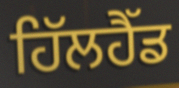
ਹਿੱਲਹੈੱਡ